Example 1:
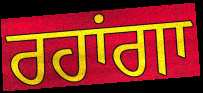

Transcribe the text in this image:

ਰਹਾਂਗਾ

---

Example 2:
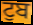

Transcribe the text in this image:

ਟੁਬ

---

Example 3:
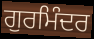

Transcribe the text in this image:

ਗੁਰਮਿੰਦਰ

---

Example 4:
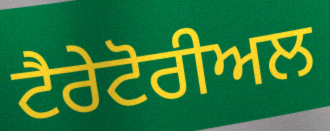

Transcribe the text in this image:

ਟੈਰੇਟੋਰੀਅਲ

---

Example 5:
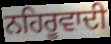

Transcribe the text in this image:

ਨਹਿਰੂਵਾਦੀ